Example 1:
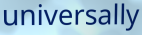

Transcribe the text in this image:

universally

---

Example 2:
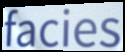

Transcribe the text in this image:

facies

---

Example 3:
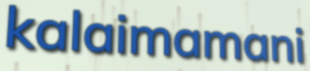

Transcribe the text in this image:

kalaimamani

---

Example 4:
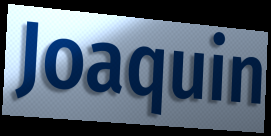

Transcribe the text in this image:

Joaquin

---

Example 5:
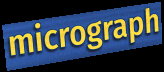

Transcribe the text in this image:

micrograph